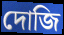
দোজি